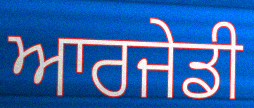
ਆਰਜੇਡੀ